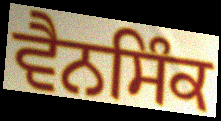
ਵੈਨਸਿੰਕ